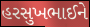
હરસુખભાઈને